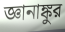
জ্ঞানাঙ্কুর